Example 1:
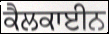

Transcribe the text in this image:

ਕੈਲਕਾਈਨ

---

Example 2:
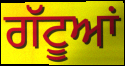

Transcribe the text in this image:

ਗੱਟੂਆਂ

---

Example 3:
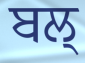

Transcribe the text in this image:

ਬਲ੍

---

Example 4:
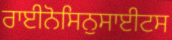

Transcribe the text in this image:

ਰਾਈਨੋਸਿਨੁਸਾਈਟਸ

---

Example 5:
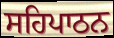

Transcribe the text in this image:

ਸਹਿਪਾਠਨ